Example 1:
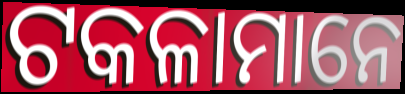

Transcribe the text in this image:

ଟକଳାମାନେ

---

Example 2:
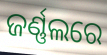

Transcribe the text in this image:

ଜର୍ଣ୍ଣଲରେ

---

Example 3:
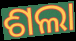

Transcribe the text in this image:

ଶଲା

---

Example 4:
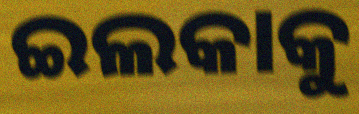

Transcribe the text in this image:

ଇଲକାକୁ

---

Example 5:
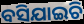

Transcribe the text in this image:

ବସିଯାଇଚି